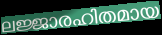
ലജ്ജാരഹിതമായ